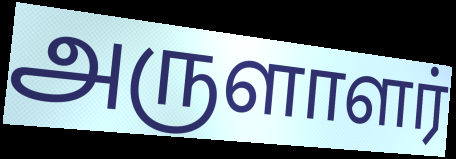
அருளாளர்